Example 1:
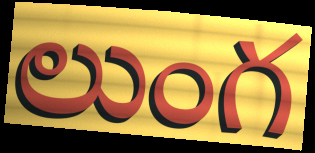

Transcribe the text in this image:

లుంగ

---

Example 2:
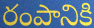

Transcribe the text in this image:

రంపానికి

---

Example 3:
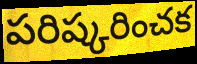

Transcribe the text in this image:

పరిష్కరించక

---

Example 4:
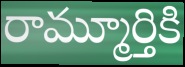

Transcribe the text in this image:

రామ్మూర్తికి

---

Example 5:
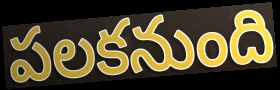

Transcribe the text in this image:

పలకనుంది